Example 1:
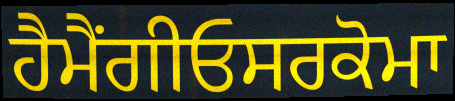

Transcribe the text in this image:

ਹੈਮੈਂਗੀਓਸਰਕੋਮਾ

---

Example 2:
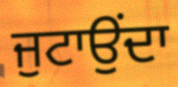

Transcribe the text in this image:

ਜੁਟਾਉਂਦਾ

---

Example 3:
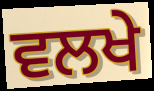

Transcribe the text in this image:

ਵਲਖੇ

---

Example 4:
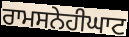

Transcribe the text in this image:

ਰਾਮਸਨੇਹੀਘਾਟ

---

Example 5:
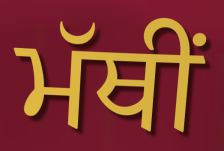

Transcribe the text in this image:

ਮੱਥੀਂ